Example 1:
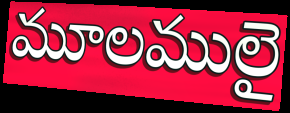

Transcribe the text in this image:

మూలములై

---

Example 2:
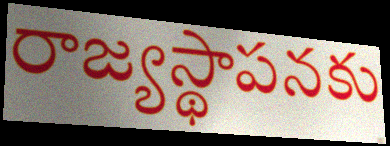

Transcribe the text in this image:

రాజ్యస్థాపనకు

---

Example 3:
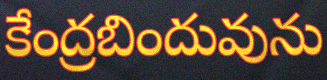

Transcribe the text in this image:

కేంద్రబిందువును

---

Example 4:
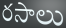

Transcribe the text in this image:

రసాలు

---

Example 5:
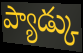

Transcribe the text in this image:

ప్యాడ్కు